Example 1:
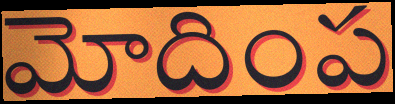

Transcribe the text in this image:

మోదింప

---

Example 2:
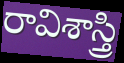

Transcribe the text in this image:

రావిశాస్త్రి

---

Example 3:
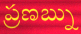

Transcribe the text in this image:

ప్రణబ్ను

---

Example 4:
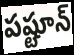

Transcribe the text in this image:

పష్టూన్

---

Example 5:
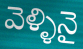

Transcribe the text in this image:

వెళ్ళినై